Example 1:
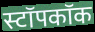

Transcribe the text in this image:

स्टॉपकॉक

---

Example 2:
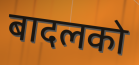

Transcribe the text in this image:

बादलको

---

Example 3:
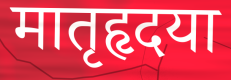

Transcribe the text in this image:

मातृहृदया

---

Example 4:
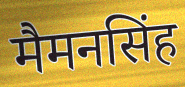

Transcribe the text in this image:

मैमनसिंह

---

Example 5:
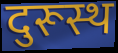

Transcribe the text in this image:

दुरूस्थ